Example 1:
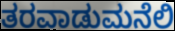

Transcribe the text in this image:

ತರವಾಡುಮನೆಲಿ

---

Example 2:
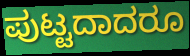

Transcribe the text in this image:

ಪುಟ್ಟದಾದರೂ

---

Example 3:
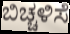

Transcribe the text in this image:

ಬಿಚ್ಚಳಿಸೆ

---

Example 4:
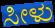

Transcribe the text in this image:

ಸೀಳು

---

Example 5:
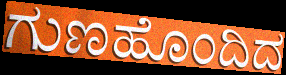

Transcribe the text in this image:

ಗುಣಹೊಂದಿದ